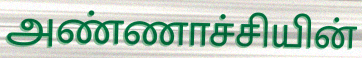
அண்ணாச்சியின்